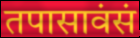
तपासावंसं